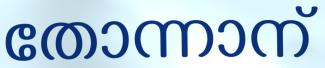
തോന്നാന്